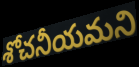
శోచనీయమని